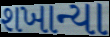
શખાન્યા